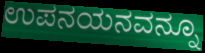
ಉಪನಯನವನ್ನೂ